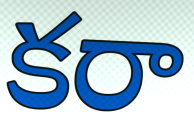
కరా